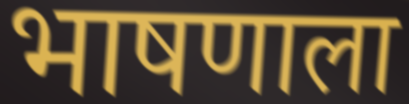
भाषणाला